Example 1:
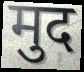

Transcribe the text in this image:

मुद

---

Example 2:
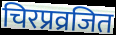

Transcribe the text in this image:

चिरप्रव्रजित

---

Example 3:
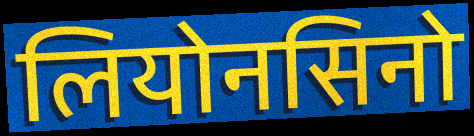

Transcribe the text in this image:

लियोनसिनो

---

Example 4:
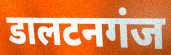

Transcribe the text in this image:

डालटनगंज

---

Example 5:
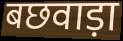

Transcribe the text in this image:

बछवाड़ा